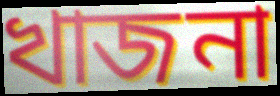
খাজনা